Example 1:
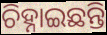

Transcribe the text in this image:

ଚିହ୍ନାଇଛନ୍ତି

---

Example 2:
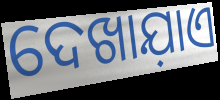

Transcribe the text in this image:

ଦେଖାଯ଼ାଏ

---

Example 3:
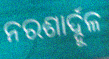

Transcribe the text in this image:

ନରଶାର୍ଦ୍ଦୂଳ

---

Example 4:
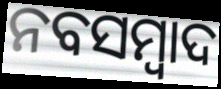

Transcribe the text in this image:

ନବସମ୍ବାଦ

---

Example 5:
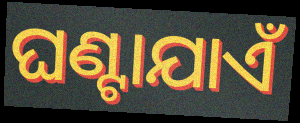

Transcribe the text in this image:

ଘଣ୍ଟାଯାଏଁ